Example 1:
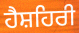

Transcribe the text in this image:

ਹੈਸ਼ਹਿਰੀ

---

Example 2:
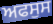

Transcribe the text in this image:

ਅਫਸੁਸ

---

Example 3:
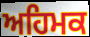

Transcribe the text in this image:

ਅਹਿਮਕ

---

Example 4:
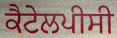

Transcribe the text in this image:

ਕੈਟੇਲਪੀਸੀ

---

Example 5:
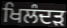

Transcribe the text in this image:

ਖਿਲੰਦੜ